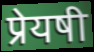
प्रेयषी